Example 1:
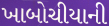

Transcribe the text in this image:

ખાબોચીયાની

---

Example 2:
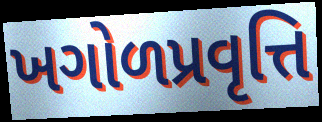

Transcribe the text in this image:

ખગોળપ્રવૃત્તિ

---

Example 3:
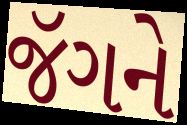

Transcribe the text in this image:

જૅગને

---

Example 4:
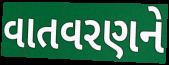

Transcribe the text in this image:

વાતવરણને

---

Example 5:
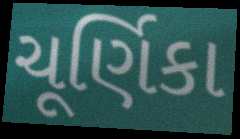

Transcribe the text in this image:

ચૂર્ણિકા